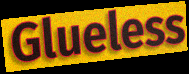
Glueless